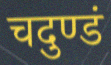
चदुण्डं